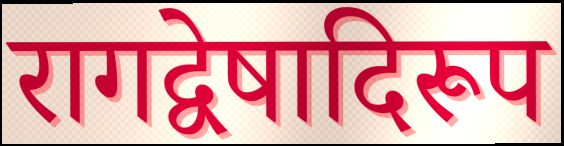
रागद्वेषादिरूप